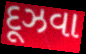
દૂઝવા